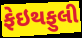
ફેઇથફુલી